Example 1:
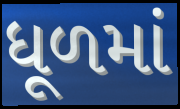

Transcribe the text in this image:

ધૂળમાં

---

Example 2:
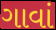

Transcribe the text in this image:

ગાવાં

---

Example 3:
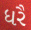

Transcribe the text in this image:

ધરૈ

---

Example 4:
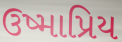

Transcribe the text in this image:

ઉષ્માપ્રિય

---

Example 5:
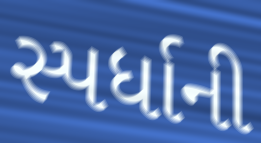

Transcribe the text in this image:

સ્પર્ધાની